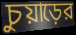
চুয়াড়ের